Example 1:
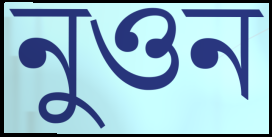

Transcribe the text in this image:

নুওন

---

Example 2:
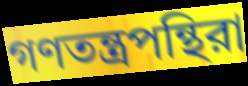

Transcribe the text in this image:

গণতন্ত্রপন্থিরা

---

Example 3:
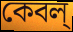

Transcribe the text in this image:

কেবল্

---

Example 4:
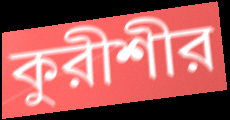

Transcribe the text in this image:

কুরীশীর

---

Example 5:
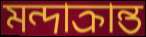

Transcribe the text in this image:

মন্দাক্রান্ত